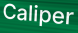
Caliper